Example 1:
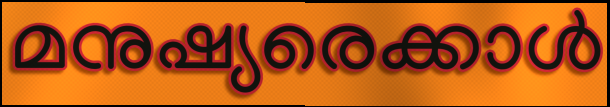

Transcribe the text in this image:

മനുഷ്യരെക്കാൾ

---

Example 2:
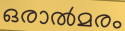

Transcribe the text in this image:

ഒരാൽമരം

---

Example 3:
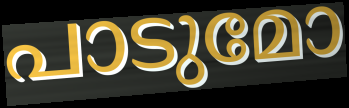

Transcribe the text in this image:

പാടുമോ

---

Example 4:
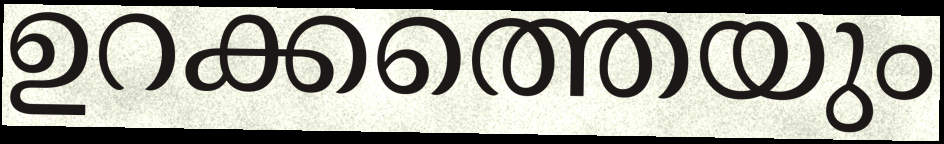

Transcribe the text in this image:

ഉറക്കത്തെയും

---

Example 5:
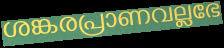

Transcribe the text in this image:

ശങ്കരപ്രാണവല്ലഭേ